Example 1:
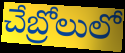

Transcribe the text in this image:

చేబ్రోలులో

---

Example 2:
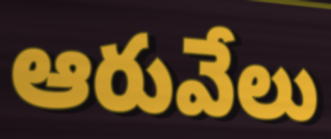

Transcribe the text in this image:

ఆరువేలు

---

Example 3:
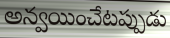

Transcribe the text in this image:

అన్వయించేటప్పుడు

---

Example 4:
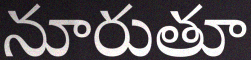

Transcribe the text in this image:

నూరుతూ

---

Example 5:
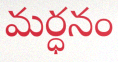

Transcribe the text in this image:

మర్ధనం